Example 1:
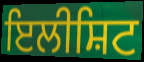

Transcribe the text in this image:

ਇਲੀਸ਼ਿਟ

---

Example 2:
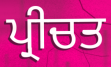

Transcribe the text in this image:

ਪ੍ਰੀਚਤ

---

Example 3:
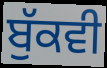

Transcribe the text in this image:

ਬੁੱਕਵੀ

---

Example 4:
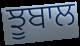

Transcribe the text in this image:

ਝੂਬਾਲ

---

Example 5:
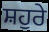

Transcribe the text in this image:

ਸ਼ਹੁਰੇ